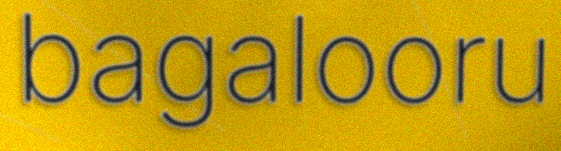
bagalooru